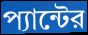
প্যান্টের